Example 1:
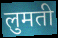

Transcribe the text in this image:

लुमती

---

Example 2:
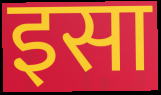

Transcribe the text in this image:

इसा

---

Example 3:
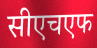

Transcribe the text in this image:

सीएचएफ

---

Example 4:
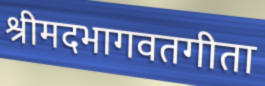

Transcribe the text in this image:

श्रीमदभागवतगीता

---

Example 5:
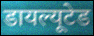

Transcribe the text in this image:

डायल्यूटेड